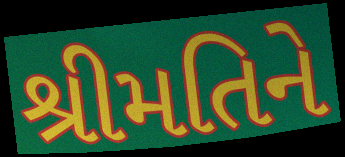
શ્રીમતિને